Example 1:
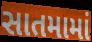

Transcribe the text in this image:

સાતમામાં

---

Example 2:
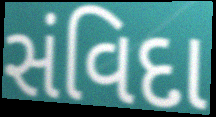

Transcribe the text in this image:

સંવિદા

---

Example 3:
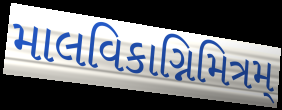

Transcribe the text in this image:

માલવિકાગ્નિમિત્રમ્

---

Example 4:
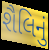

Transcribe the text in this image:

શૈલિનું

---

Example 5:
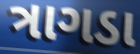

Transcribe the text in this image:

ત્રાગડા